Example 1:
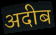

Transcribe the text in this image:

अदीब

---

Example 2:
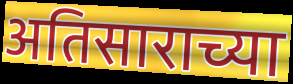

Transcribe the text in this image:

अतिसाराच्या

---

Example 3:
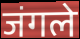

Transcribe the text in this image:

जंगले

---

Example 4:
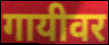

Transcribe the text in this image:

गायीवर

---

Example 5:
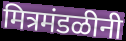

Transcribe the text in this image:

मित्रमंडळीनी